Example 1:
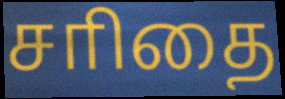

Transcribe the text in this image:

சரிதை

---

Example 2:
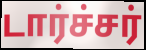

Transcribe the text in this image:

டார்ச்சர்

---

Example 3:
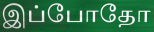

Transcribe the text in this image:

இப்போதோ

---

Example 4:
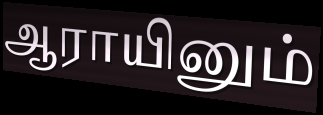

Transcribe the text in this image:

ஆராயினும்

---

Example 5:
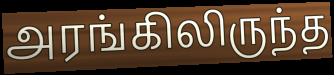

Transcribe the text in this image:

அரங்கிலிருந்த